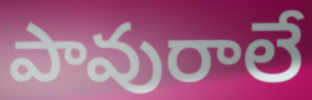
పావురాలే